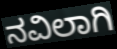
ನವಿಲಾಗಿ